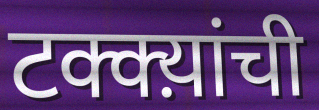
टक्क्य़ांची